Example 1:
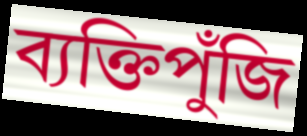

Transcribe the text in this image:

ব্যক্তিপুঁজি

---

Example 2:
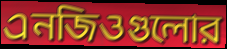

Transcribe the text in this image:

এনজিওগুলোর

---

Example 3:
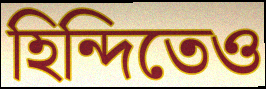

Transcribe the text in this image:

হিন্দিতেও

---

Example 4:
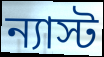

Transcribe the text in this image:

ন্যাস্ট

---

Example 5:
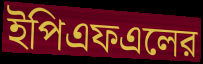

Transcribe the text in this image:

ইপিএফএলের